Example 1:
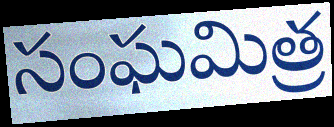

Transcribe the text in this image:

సంఘమిత్ర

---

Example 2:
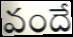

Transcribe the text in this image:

వందే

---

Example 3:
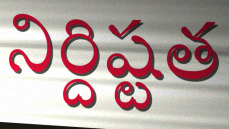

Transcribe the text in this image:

నిర్దిష్టత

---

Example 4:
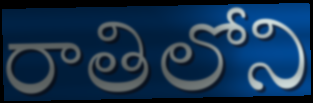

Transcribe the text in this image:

రాతిలోని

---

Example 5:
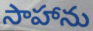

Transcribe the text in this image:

సాహాను